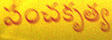
పంచకృత్య